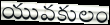
యువకులం